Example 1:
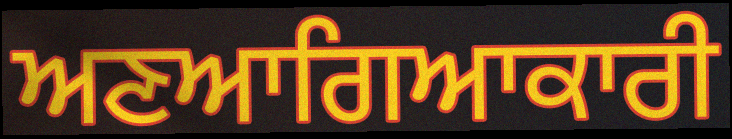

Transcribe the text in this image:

ਅਣਆਗਿਆਕਾਰੀ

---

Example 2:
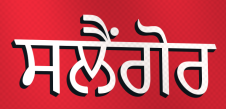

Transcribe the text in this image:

ਸਲੈਂਗੋਰ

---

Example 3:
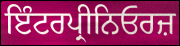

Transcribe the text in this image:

ਇੰਟਰਪ੍ਰੀਨਿਓਰਜ਼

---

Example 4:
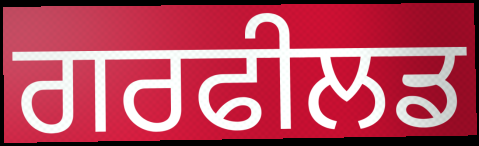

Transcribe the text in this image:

ਗਰਫੀਲਡ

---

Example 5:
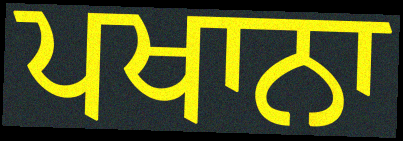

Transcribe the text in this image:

ਪਖਾਨਾ